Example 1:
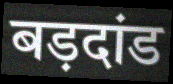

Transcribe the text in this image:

बड़दांड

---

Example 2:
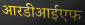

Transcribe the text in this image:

आरडीआईएफ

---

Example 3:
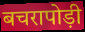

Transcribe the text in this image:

बचरापोड़ी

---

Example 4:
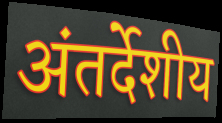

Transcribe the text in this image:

अंतर्देशीय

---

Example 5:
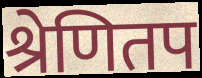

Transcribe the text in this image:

श्रेणितप